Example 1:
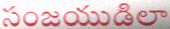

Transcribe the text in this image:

సంజయుడిలా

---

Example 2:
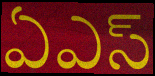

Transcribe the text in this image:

ఏఎస్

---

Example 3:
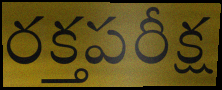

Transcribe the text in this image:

రక్తపరీక్ష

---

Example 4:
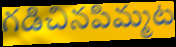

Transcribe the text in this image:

గడిచినపిమ్మట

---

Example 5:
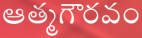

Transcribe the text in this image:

ఆత్మగౌరవం